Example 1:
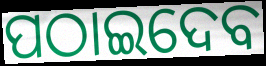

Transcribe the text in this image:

ପଠାଇଦେବ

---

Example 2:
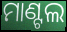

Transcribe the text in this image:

ମାଣ୍ଟଲ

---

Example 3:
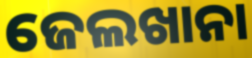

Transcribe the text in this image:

ଜେଲଖାନା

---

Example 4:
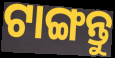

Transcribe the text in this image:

ଟାଙ୍ଗନ୍ତୁ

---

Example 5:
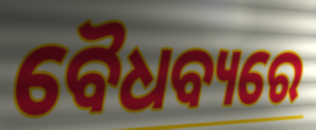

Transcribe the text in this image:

ବୈଧବ୍ୟରେ